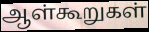
ஆள்கூறுகள்